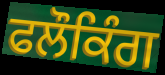
ਫਲੌਕਿੰਗ